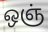
ஒஞ்